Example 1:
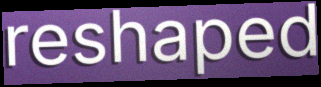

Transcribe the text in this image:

reshaped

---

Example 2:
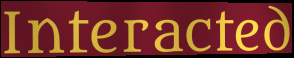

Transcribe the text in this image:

Interacted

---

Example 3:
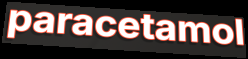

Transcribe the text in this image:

paracetamol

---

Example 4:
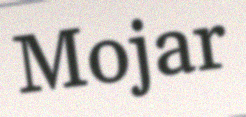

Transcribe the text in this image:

Mojar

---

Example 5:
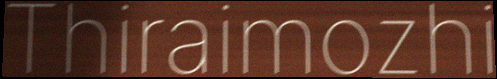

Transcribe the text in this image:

Thiraimozhi